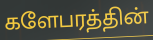
களேபரத்தின்